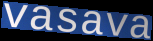
vasava